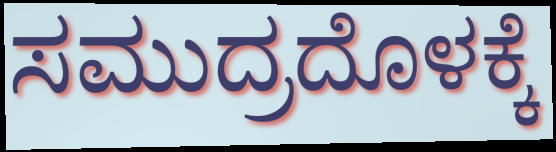
ಸಮುದ್ರದೊಳಕ್ಕೆ